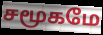
சமூகமே